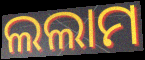
ଲଲାମ